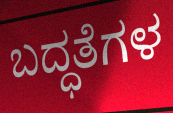
ಬದ್ಧತೆಗಳ